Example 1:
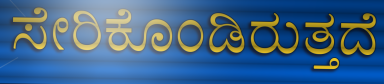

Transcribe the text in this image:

ಸೇರಿಕೊಂಡಿರುತ್ತದೆ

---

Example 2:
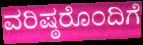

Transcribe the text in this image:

ವರಿಷ್ಠರೊಂದಿಗೆ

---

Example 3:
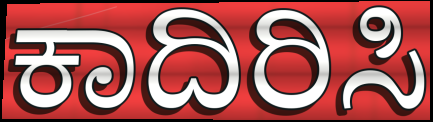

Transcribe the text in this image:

ಕಾದಿರಿಸಿ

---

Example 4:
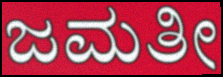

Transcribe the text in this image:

ಜಮತೀ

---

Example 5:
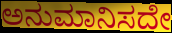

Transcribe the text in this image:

ಅನುಮಾನಿಸದೇ